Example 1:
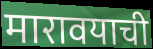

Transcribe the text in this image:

मारावयाची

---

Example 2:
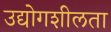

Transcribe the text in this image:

उद्योगशीलता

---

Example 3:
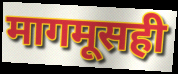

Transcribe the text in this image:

मागमूसही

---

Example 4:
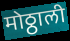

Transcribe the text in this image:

मोठ्ठाली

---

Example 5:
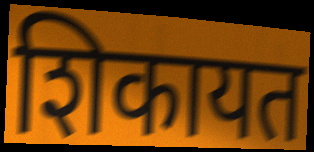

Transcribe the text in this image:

शिकायत